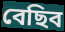
বেছিব